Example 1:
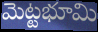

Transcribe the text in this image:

మెట్టభూమి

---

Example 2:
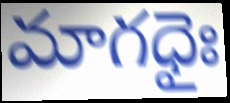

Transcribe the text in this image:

మాగధైః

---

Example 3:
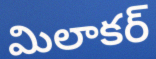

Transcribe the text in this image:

మిలాకర్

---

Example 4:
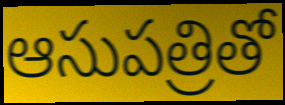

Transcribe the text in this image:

ఆసుపత్రితో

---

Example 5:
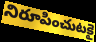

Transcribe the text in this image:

నిరూపించుటకై